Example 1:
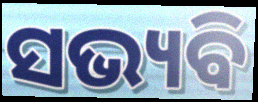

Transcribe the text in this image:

ସଭ୍ୟବି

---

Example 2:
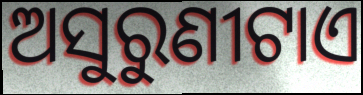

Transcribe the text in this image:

ଅସୁରୁଣୀଟାଏ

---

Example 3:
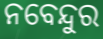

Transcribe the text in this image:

ନବେନ୍ଦୁର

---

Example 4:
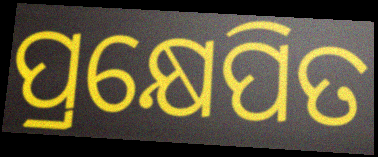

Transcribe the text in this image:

ପ୍ରକ୍ଷେପିତ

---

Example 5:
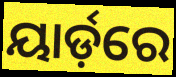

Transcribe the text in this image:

ୟାର୍ଡ଼ରେ